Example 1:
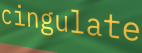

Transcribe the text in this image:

cingulate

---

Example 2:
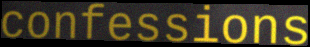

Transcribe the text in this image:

confessions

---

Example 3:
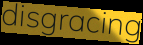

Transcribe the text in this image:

disgracing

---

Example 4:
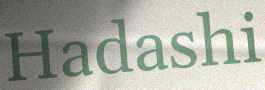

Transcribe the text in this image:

Hadashi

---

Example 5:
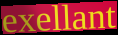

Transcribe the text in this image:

exellant